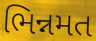
ભિન્નમત